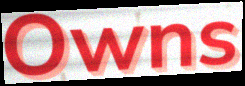
Owns